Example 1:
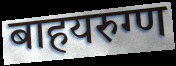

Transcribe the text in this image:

बाहयरुग्ण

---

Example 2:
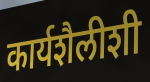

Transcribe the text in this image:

कार्यशैलीशी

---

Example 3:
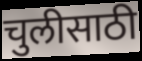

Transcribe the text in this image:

चुलीसाठी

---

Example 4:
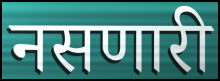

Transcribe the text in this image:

नसणारी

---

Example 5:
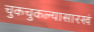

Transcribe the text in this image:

चुकचुकल्यासारखं